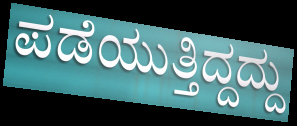
ಪಡೆಯುತ್ತಿದ್ದದ್ದು